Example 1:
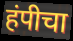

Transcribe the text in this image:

हंपीचा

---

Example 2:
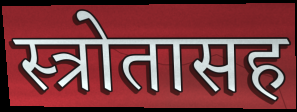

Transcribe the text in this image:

स्त्रोतासह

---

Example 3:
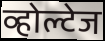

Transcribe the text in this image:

व्होल्टेज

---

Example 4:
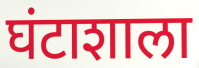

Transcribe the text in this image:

घंटाशाला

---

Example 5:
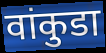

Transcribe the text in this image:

वांकुडा